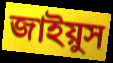
জাইয়ুস